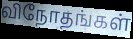
விநோதங்கள்